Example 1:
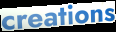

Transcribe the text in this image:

creations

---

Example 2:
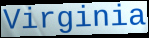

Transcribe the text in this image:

Virginia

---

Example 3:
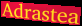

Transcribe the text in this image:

Adrastea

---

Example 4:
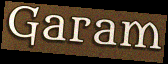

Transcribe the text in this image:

Garam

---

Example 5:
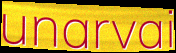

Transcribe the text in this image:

unarvai